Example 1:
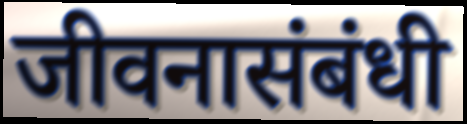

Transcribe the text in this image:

जीवनासंबंधी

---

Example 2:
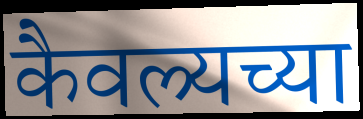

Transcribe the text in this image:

कैवल्यच्या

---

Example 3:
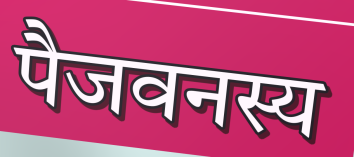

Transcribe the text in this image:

पैजवनस्य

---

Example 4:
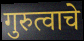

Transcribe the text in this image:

गुरुत्वाचे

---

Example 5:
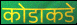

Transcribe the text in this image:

कोडाकडे